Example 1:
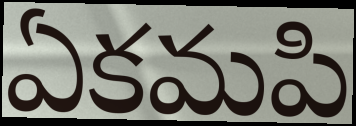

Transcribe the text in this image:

ఏకమపి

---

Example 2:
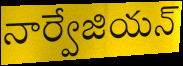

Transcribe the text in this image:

నార్వేజియన్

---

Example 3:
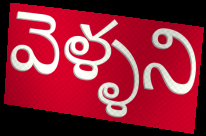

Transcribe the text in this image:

వెళ్ళని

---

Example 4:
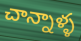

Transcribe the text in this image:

చాన్నాళ్ళ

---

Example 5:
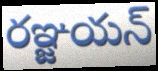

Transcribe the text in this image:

రఞ్జయన్